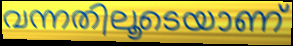
വന്നതിലൂടെയാണ്